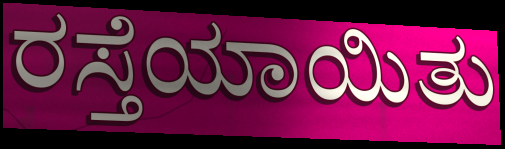
ರಸ್ತೆಯಾಯಿತು